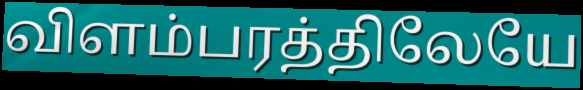
விளம்பரத்திலேயே